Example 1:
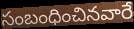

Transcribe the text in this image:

సంబంధించినవారే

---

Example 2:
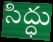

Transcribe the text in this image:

సిద్ధు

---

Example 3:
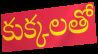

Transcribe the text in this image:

కుక్కలతో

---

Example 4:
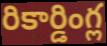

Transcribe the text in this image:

రికార్డింగ్ల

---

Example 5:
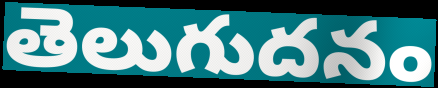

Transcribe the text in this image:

తెలుగుదనం